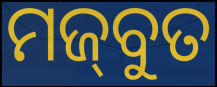
ମଜ୍‌ବୁତ